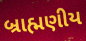
બ્રાહ્મણીય